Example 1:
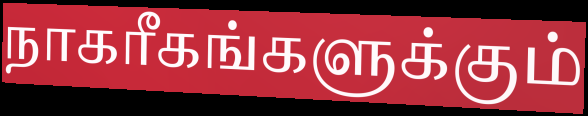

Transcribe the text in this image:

நாகரீகங்களுக்கும்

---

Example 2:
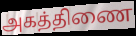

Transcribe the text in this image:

அகத்திணை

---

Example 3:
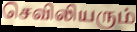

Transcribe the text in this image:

செவிலியரும்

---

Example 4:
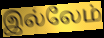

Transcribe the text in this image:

இல்லேம்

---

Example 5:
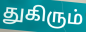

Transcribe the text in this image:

துகிரும்